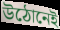
উঠোনেই